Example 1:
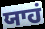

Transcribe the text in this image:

ਯਾਹਂ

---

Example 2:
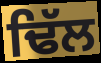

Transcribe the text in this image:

ਢਿੱਲ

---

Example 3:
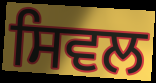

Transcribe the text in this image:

ਸਿਵਲ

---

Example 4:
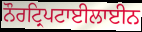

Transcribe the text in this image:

ਨੌਰਟ੍ਰਿਪਟਾਈਲਾਈਨ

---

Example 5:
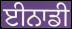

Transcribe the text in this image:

ਈਨਾਡੀ